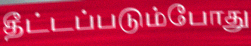
தீட்டப்படும்போது